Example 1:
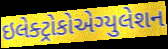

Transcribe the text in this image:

ઇલેક્ટ્રોકોએગ્યુલેશન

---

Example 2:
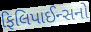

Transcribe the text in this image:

ફિલિપાઈન્સનો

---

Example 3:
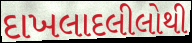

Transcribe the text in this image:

દાખલાદલીલોથી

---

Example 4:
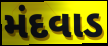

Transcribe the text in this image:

મંદવાડ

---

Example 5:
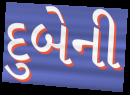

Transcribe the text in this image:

દુબેની